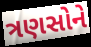
ત્રણસોને